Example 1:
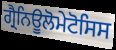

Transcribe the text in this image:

ਗ੍ਰੈਨਿਊਲੋਮੇਟੋਸਿਸ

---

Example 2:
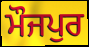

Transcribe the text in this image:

ਮੌਜਪੁਰ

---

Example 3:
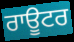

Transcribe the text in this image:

ਰਾਊਟਰ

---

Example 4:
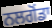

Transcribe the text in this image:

ਨਲਗੋਂਡਾ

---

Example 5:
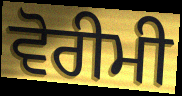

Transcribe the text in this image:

ਵੋਰੀਮੀ